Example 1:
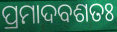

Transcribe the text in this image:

ପ୍ରମାଦବଶତଃ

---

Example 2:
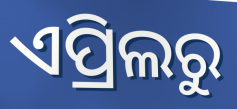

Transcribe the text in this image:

ଏପ୍ରିଲରୁ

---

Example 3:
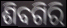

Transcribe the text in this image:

ଶିବଗିରି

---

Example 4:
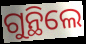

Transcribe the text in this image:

ଗୁନ୍ଥିଲେ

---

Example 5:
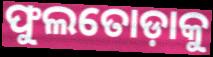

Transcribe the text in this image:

ଫୁଲତୋଡ଼ାକୁ